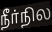
நீர்நில